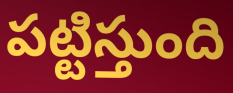
పట్టిస్తుంది